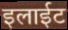
इलाईट